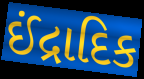
ઈંદ્રાદિક